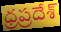
ధ్రప్రదేశ్